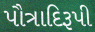
પૌત્રાદિરૂપી